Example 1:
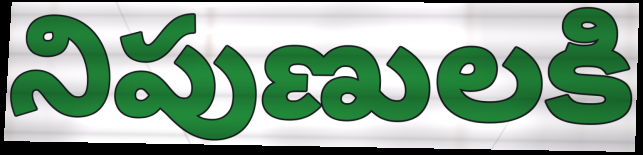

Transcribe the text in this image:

నిపుణులకి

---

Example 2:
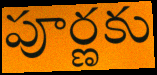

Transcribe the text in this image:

పూర్ణకు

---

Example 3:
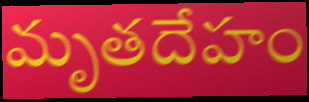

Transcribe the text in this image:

మృతదేహం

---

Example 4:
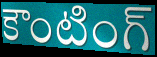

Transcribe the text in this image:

కౌంటింగ్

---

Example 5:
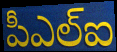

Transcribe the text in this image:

పీఎల్ఐ